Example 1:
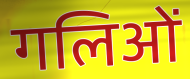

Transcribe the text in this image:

गलिओं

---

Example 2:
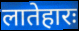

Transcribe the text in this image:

लातेहारः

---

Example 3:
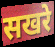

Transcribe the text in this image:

सखरे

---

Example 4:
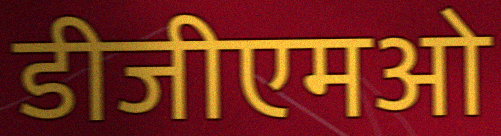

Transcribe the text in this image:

डीजीएमओ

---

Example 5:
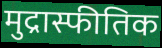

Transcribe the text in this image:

मुद्रास्फीतिक